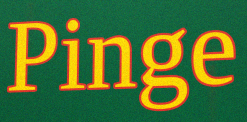
Pinge